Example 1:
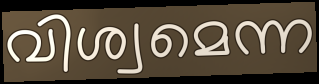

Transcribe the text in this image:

വിശ്വമെന്ന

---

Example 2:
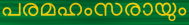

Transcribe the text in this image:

പരമഹംസരായും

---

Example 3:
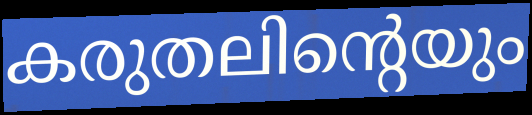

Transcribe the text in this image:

കരുതലിന്റെയും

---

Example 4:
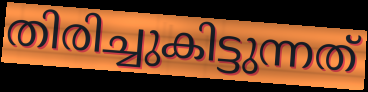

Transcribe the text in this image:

തിരിച്ചുകിട്ടുന്നത്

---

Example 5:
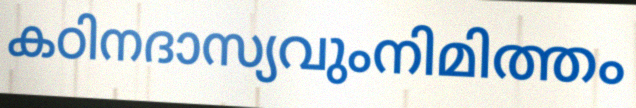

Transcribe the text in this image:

കഠിനദാസ്യവുംനിമിത്തം